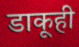
डाकूही